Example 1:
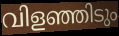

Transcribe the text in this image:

വിളഞ്ഞിടും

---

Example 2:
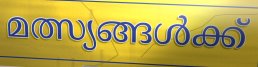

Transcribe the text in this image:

മത്സ്യങ്ങൾക്ക്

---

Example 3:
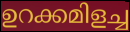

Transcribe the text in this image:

ഉറക്കമിളച്ച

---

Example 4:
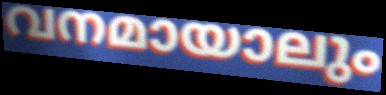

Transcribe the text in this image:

വനമായാലും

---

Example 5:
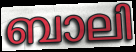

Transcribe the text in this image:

ബാലി